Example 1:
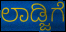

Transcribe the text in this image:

ಲಾಡ್ಜಿಗೆ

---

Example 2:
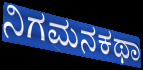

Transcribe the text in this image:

ನಿಗಮನಕಥಾ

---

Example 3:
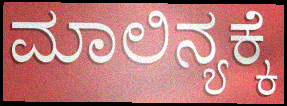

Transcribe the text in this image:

ಮಾಲಿನ್ಯಕ್ಕೆ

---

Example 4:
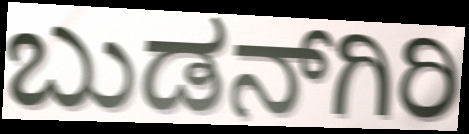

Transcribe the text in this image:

ಬುಡನ್‍ಗಿರಿ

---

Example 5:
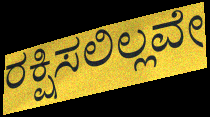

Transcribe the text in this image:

ರಕ್ಷಿಸಲಿಲ್ಲವೇ